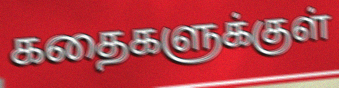
கதைகளுக்குள்